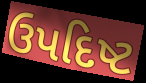
ઉપદિષ્ટ